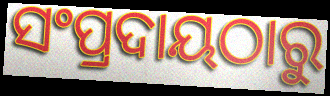
ସଂପ୍ରଦାୟଠାରୁ